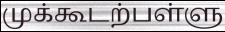
முக்கூடற்பள்ளு